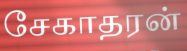
சேகாதரன்